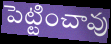
పెట్టించావు